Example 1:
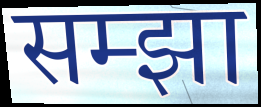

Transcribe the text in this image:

सम्झा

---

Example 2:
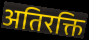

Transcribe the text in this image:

अतिरक्ति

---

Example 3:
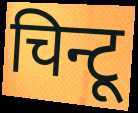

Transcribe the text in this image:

चिन्टू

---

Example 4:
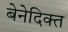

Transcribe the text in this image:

बेनेदिक्त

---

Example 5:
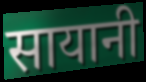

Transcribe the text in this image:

सायानी